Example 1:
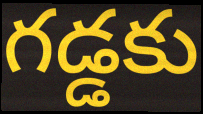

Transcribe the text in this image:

గడ్డకు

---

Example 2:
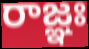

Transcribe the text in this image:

రాజ్ఞః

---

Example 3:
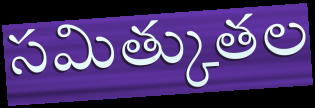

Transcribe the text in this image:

సమిత్కుతల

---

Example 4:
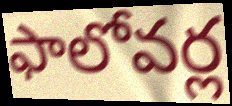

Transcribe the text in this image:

ఫాలోవర్ల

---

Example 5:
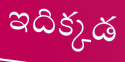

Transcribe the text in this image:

ఇదిక్కడ